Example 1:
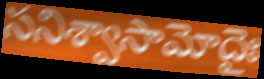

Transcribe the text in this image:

సనిశ్వాసామోదైః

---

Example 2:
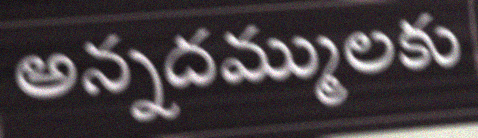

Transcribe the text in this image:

అన్నదమ్ములకు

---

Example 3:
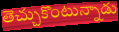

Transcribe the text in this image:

తెచ్చుకొంటున్నాడు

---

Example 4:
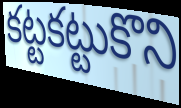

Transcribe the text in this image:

కట్టకట్టుకొని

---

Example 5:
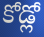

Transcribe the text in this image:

కోడ్లో